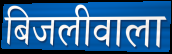
बिजलीवाला